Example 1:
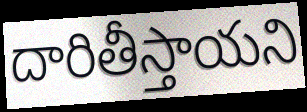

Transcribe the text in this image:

దారితీస్తాయని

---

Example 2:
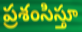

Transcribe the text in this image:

ప్రశంసిస్తూ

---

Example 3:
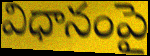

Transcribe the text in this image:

విధానంపై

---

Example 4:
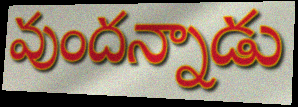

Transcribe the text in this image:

వుందన్నాడు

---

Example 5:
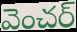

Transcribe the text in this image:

వెంచర్